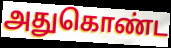
அதுகொண்ட